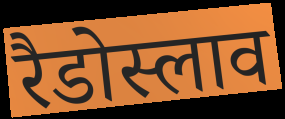
रैडोस्लाव